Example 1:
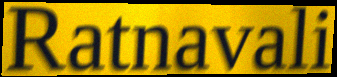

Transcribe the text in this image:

Ratnavali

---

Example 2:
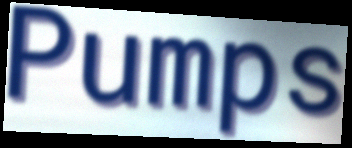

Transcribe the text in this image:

Pumps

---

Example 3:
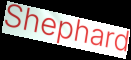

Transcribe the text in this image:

Shephard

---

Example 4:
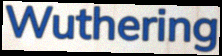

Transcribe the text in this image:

Wuthering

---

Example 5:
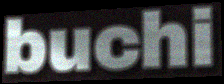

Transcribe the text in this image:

buchi